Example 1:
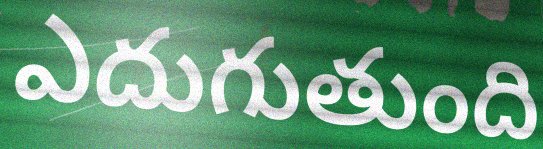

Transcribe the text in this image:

ఎదుగుతుంది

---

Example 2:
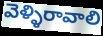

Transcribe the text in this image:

వెళ్ళిరావాలి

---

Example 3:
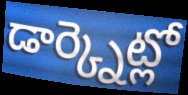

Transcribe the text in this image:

డార్క్నెట్లో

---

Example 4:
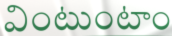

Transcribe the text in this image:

వింటుంటాం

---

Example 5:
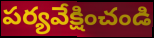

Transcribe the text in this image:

పర్యవేక్షించండి